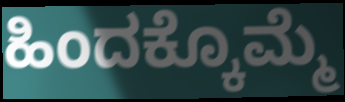
ಹಿಂದಕ್ಕೊಮ್ಮೆ